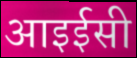
आइईसी